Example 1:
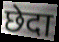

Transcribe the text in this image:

छेदा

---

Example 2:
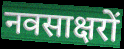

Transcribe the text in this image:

नवसाक्षरों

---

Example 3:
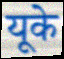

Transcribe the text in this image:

यूके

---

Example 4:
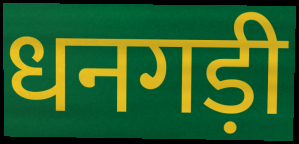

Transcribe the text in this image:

धनगड़ी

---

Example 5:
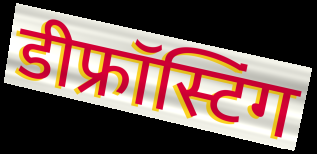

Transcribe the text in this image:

डीफ्रॉस्टिंग